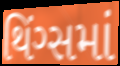
થિંગ્સમાં